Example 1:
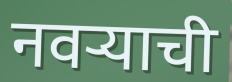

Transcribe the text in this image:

नवऱ्याची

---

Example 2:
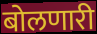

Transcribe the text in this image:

बोलणारी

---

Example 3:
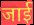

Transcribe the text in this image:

जाई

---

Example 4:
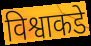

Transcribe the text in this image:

विश्वाकडे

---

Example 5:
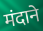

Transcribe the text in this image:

मंदाने